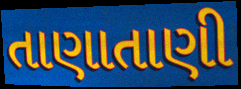
તાણાતાણી